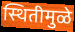
स्थितीमुळे